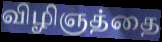
விழிஞத்தை